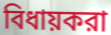
বিধায়করা